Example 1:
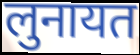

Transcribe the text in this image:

लुनायत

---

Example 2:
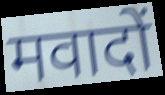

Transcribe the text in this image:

मवादों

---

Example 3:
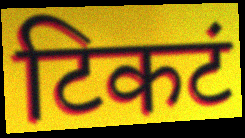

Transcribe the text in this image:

टिकटं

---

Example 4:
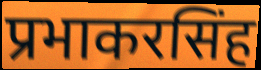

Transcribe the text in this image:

प्रभाकरसिंह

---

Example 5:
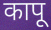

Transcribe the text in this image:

कापू